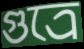
গুত্রে